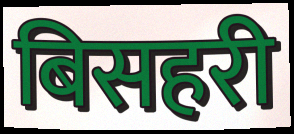
बिसहरी